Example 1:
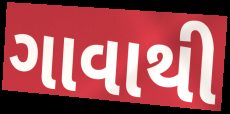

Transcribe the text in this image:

ગાવાથી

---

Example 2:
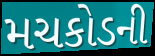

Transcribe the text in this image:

મચકોડની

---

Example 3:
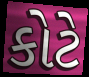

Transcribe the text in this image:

કોટે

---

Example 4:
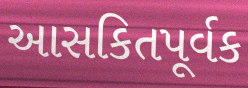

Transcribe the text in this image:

આસકિતપૂર્વક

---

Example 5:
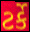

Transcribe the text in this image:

ટર્કે